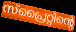
സ്പ്രൈറ്റിന്റെ